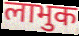
लाभुक